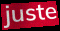
juste